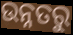
ଉନ୍ନତରୁ